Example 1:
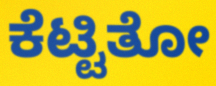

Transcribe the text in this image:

ಕೆಟ್ಟಿತೋ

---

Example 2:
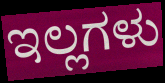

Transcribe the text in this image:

ಇಲ್ಲಗಳು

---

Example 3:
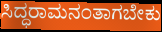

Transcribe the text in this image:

ಸಿದ್ಧರಾಮನಂತಾಗಬೇಕು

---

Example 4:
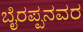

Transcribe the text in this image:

ಬೈರಪ್ಪನವರ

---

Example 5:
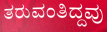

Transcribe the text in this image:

ತರುವಂತಿದ್ದವು